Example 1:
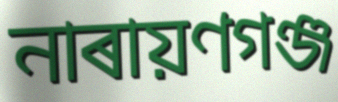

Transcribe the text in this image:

নাৰায়ণগঞ্জ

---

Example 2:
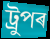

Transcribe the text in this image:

ট্ৰুপৰ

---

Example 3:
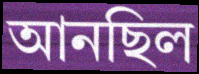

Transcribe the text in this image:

আনছিল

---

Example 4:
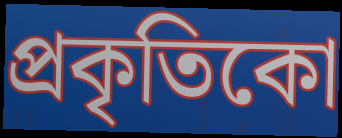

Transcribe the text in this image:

প্ৰকৃতিকো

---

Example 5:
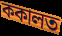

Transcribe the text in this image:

ককালত